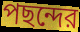
পছন্দের